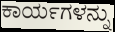
ಕಾರ್ಯಗಳನ್ನು